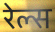
रेल्स